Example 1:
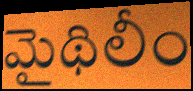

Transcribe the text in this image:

మైథిలీం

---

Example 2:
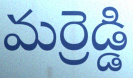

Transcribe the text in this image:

మర్రెడ్డి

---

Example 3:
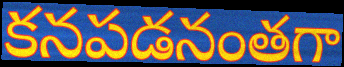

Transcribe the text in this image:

కనపడనంతగా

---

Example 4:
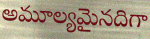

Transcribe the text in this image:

అమూల్యమైనదిగా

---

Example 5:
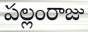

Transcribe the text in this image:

పల్లంరాజు